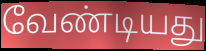
வேண்டியது